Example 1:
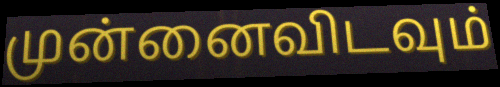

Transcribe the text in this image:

முன்னைவிடவும்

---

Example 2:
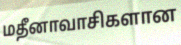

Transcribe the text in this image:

மதீனாவாசிகளான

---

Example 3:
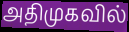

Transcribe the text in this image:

அதிமுகவில்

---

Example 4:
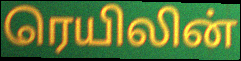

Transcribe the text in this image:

ரெயிலின்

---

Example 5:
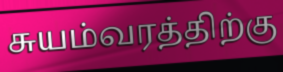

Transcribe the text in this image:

சுயம்வரத்திற்கு